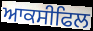
ਆਕਸੀਫਿਲ